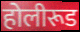
होलीरूड